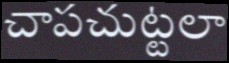
చాపచుట్టలా